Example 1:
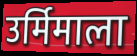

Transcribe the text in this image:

उर्मिमाला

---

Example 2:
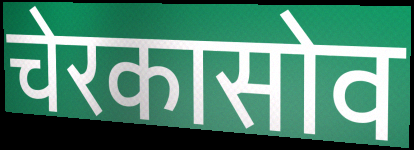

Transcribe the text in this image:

चेरकासोव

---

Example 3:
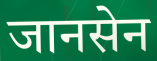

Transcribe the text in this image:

जानसेन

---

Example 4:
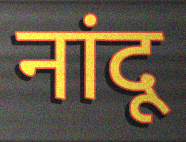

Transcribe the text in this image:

नांदू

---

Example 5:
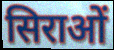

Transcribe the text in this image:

सिराओं